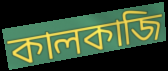
কালকাজি